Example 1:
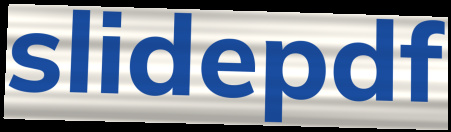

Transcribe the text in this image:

slidepdf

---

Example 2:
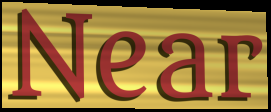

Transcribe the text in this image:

Near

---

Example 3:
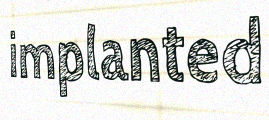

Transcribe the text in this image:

implanted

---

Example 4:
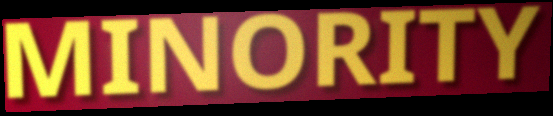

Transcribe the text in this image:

MINORITY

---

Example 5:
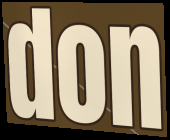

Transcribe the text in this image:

don